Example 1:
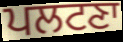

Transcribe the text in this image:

ਪਲਟਣਾ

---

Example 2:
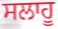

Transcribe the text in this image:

ਸਲਾਹੂ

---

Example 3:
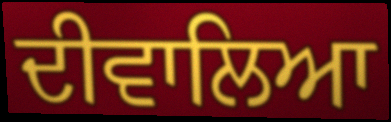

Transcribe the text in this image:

ਦੀਵਾਲਿਆ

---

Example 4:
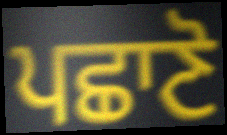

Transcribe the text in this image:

ਪਛਾਣੋ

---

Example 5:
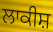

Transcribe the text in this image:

ਲਾਕੀਸ਼